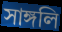
সাঙ্গলি